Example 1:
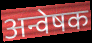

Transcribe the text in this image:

अन्वेषक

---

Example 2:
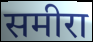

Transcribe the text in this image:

समीरा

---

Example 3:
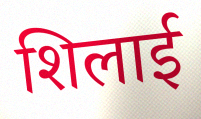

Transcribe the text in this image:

शिलाई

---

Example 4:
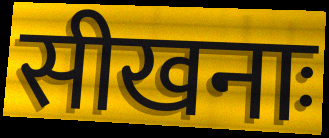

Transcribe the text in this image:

सीखनाः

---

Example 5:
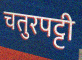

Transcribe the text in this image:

चतुरपट्टी